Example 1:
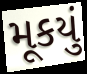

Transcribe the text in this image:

મૂકયું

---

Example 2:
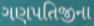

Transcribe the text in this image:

ગણપતિજીના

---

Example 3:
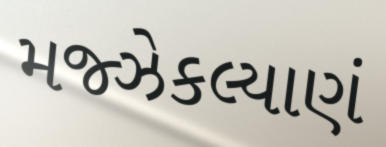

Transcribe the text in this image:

મજ્ઝેકલ્યાણં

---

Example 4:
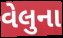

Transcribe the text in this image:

વેલુના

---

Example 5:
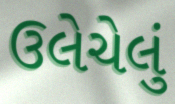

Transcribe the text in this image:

ઉલેચેલું